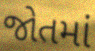
જોતમાં